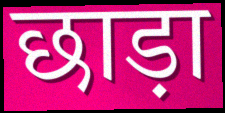
छाड़ा